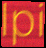
lpi